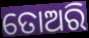
ତୋଅରି